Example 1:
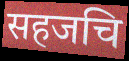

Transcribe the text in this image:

सहजचि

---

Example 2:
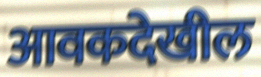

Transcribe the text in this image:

आवकदेखील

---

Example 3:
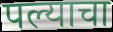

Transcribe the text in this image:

पल्याचा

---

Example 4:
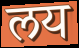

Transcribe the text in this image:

लय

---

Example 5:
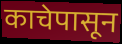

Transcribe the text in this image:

काचेपासून